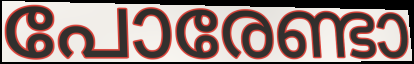
പോരേണ്ടാ